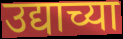
उद्याच्या